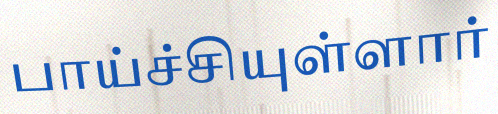
பாய்ச்சியுள்ளார்